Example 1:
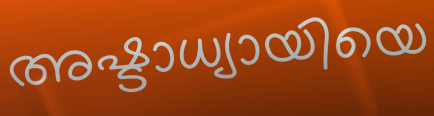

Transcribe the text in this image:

അഷ്ടാധ്യായിയെ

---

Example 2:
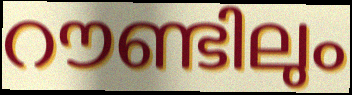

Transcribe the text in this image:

റൗണ്ടിലും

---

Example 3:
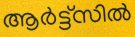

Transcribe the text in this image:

ആർട്ട്സിൽ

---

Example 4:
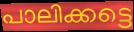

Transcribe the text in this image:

പാലിക്കട്ടെ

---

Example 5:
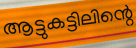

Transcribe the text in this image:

ആട്ടുകട്ടിലിന്റെ